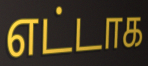
எட்டாக